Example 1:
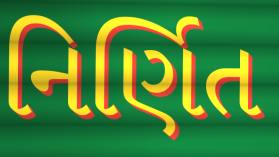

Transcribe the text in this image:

નિર્ણિત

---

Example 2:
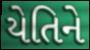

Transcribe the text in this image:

યેતિને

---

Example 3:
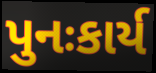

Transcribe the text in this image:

પુનઃકાર્ય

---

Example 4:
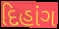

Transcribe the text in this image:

દિહાંગ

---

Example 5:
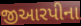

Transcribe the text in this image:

જીઆરપીના